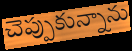
చెప్పుకున్నాను